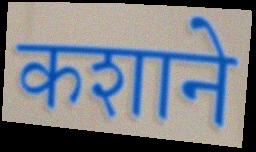
कशाने